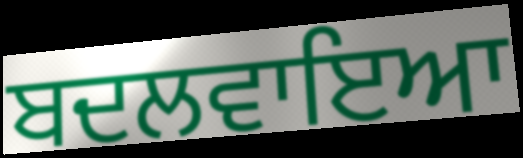
ਬਦਲਵਾਇਆ